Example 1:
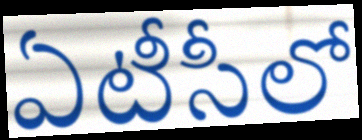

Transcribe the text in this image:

ఏటీసీలో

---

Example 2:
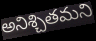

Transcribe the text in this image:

అనిశ్చితమని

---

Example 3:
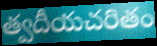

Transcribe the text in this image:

త్వదీయచరితం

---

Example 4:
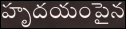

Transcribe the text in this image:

హృదయంపైన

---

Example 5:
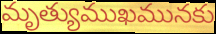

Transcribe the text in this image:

మృత్యుముఖమునకు